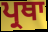
ਪ੍ਰਥਾ